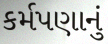
કર્મપણાનું